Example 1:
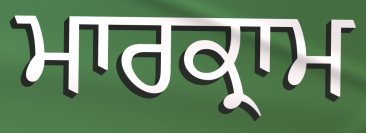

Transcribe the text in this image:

ਮਾਰਕ੍ਰਾਮ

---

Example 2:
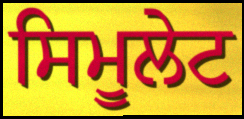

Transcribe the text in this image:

ਸਿਮੂਲੇਟ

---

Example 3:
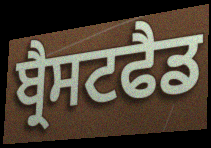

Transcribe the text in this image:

ਬ੍ਰੈਸਟਫੈਡ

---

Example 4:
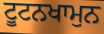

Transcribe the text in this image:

ਟੂਟਨਖਾਮੁਨ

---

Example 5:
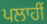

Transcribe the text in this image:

ਪਲਾਹੀਂ